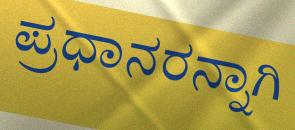
ಪ್ರಧಾನರನ್ನಾಗಿ